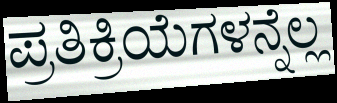
ಪ್ರತಿಕ್ರಿಯೆಗಳನ್ನೆಲ್ಲ